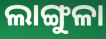
ଲାଙ୍ଗୁଳା